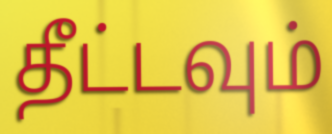
தீட்டவும்